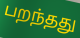
பறந்தது